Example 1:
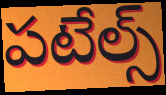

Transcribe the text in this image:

పటేల్స్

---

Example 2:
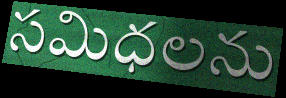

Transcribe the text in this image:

సమిధలను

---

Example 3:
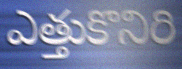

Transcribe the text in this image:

ఎత్తుకొనిరి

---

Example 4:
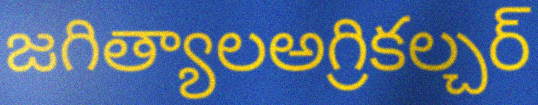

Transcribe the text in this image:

జగిత్యాలఅగ్రికల్చర్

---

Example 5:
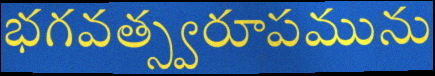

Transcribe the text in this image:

భగవత్స్వరూపమును